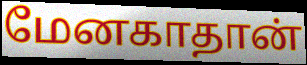
மேனகாதான்